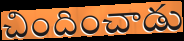
చిందించాడు